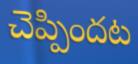
చెప్పిందట